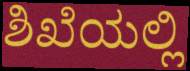
ಶಿಖೆಯಲ್ಲಿ